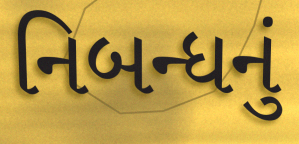
નિબન્ધનું